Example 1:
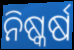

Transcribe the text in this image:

ନିଷ୍କର୍ଷ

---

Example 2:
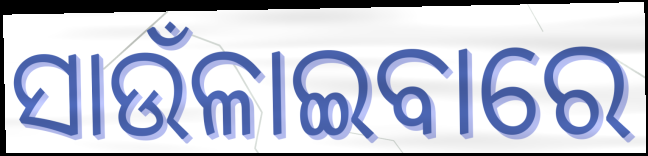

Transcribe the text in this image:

ସାଉଁଳାଇବାରେ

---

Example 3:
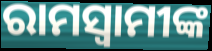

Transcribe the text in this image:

ରାମସ୍ୱାମୀଙ୍କ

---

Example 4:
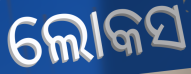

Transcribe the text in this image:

ଲୋକସ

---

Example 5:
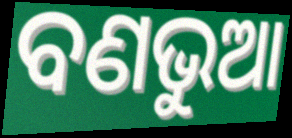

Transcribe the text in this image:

ବଣଭୁଆ